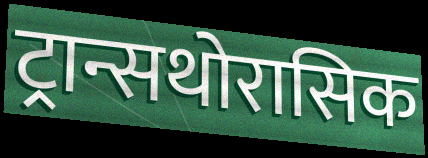
ट्रान्सथोरासिक